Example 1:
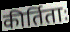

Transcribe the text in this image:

कीर्तिताः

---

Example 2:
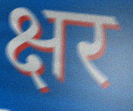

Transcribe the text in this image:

क्षर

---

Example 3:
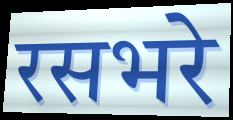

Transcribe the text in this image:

रसभरे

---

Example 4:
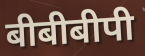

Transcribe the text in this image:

बीबीबीपी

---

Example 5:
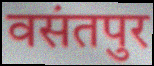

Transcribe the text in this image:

वसंतपुर